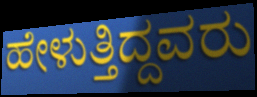
ಹೇಳುತ್ತಿದ್ದವರು